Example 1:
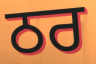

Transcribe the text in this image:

ਠਰ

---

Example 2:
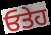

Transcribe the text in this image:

ਓਤੇਹ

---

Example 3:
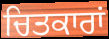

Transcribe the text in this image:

ਚਿਤਕਾਰਾਂ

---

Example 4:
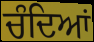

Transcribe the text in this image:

ਚੰਦਿਆਂ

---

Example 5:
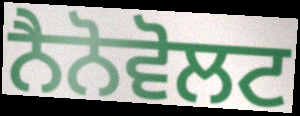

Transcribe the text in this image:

ਨੈਨੋਵੋਲਟ